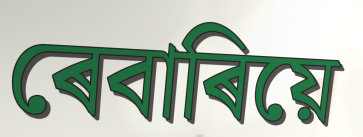
ৰেবাৰিয়ে